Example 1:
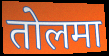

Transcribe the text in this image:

तोलमा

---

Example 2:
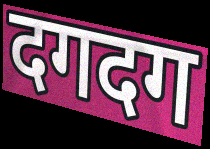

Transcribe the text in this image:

दगदग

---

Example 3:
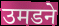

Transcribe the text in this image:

उमडने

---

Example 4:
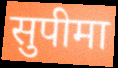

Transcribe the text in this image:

सुपीमा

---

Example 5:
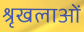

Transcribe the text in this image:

श्रृखलाओं